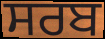
ਸਰਬ